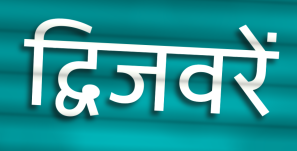
द्विजवरें